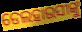
ଡେଲହାଉସୀଙ୍କୁ